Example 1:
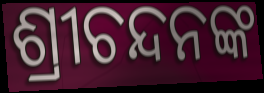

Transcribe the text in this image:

ଶ୍ରୀଚନ୍ଦନଙ୍କ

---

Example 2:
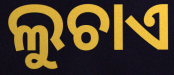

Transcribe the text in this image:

ଲୁଚାଏ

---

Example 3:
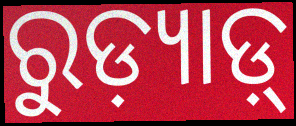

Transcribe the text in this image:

ରୁଡ଼୍ୟାଡ଼୍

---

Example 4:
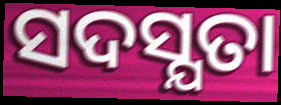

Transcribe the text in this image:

ସଦସ୍ଯତା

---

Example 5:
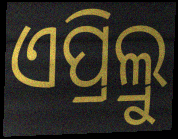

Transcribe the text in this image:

ଏପ୍ରିଲ୍ରୁ